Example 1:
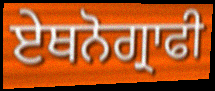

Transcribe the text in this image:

ਏਥਨੋਗ੍ਰਾਫੀ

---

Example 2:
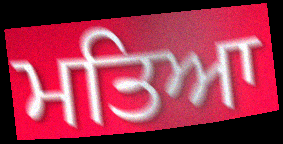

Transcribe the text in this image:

ਮਤਿਆ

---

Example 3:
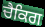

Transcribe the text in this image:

ਚੈਕਿਗ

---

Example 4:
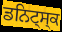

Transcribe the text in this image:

ਡਨਿਟ੍ਸ੍ਕ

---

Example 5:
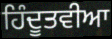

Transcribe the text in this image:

ਹਿੰਦੂਤਵੀਆ